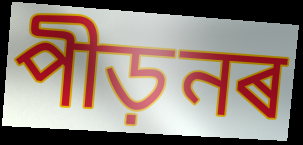
পীড়নৰ